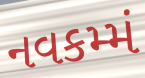
નવકમ્મં